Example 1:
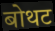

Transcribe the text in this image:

बोथट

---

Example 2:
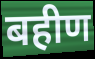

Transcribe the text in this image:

बहीण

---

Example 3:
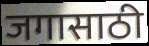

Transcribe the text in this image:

जगासाठी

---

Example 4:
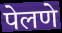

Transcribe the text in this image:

पेलणे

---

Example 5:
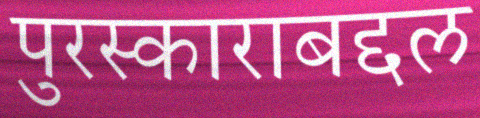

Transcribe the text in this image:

पुरस्काराबद्दल